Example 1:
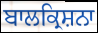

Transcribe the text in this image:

ਬਾਲਕ੍ਰਿਸ਼ਨਾ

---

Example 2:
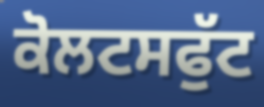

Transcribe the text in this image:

ਕੋਲਟਸਫੁੱਟ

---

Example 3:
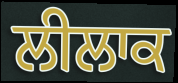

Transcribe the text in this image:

ਲੀਲਾਕ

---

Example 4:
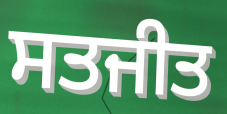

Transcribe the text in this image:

ਸਤਜੀਤ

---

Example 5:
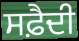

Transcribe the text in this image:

ਸਫ਼ੈਦੀ